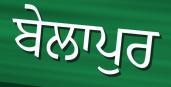
ਬੇਲਾਪੁਰ